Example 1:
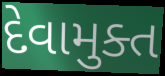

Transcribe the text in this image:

દેવામુક્ત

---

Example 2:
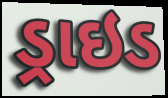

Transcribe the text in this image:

ડ્રાઇડ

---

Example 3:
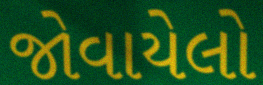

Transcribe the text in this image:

જોવાયેલો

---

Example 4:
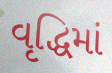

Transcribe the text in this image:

વૃદ્ધિમાં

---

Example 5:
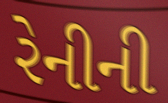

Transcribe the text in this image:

રેનીની